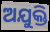
ଅଯୁକ୍ତି